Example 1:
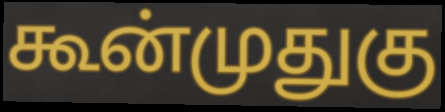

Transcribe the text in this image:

கூன்முதுகு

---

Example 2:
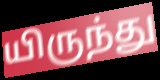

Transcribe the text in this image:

யிருந்து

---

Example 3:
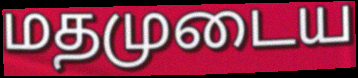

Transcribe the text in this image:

மதமுடைய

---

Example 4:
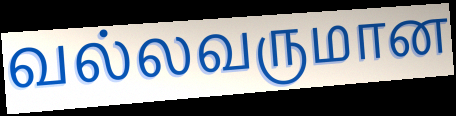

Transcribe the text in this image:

வல்லவருமான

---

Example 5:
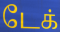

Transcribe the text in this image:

டேக்